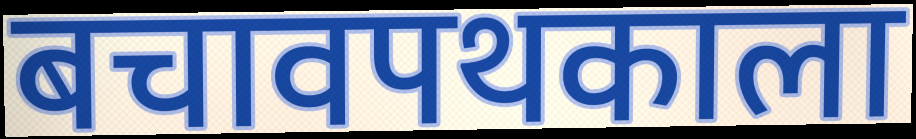
बचावपथकाला